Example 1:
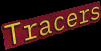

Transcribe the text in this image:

Tracers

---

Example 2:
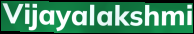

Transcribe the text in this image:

Vijayalakshmi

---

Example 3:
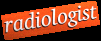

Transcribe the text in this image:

radiologist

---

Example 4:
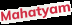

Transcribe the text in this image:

Mahatyam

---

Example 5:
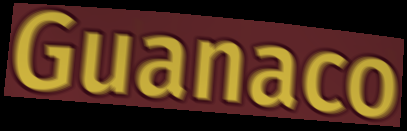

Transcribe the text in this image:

Guanaco